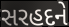
સરહદને